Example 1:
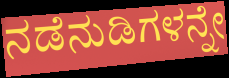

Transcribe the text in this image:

ನಡೆನುಡಿಗಳನ್ನೇ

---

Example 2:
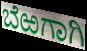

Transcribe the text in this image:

ಬೆಱಗಾಗಿ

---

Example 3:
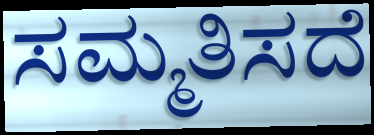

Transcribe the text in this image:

ಸಮ್ಮತಿಸದೆ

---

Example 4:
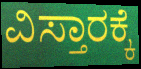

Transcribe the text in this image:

ವಿಸ್ತಾರಕ್ಕೆ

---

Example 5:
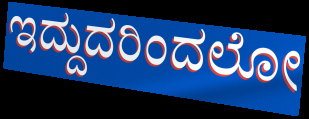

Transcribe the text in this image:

ಇದ್ದುದರಿಂದಲೋ